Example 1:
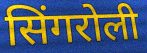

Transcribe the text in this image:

सिंगरोली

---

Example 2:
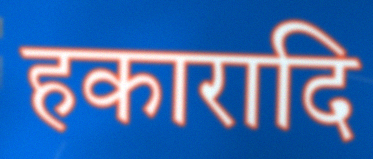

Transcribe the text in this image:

हकारादि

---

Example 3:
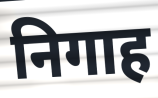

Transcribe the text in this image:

निगाह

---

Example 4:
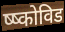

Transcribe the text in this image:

ष्ष्कोविड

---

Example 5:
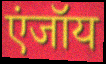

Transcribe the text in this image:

एंजॉय